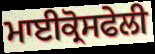
ਮਾਈਕ੍ਰੋਸਫੇਲੀ